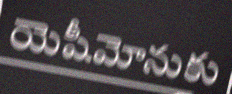
యెషీమోనుకు